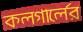
কলগার্লের